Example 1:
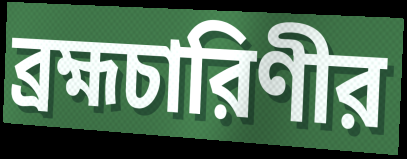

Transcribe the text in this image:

ব্রহ্মচারিণীর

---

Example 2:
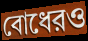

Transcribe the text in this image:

বোধেরও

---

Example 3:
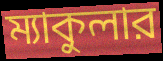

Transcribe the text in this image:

ম্যাকুলার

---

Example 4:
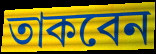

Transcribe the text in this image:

তাকবেন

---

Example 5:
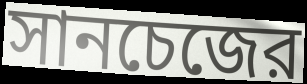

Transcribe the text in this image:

সানচেজের